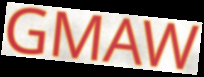
GMAW